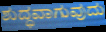
ಶುದ್ಧವಾಗುವುದು